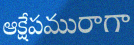
ఆక్షేపమురాగా